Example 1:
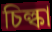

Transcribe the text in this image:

চিল্কা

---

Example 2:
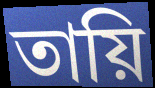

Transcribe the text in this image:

তায়ি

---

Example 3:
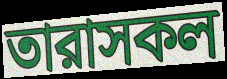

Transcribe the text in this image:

তারাসকল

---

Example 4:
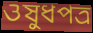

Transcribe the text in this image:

ওষুধপত্র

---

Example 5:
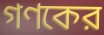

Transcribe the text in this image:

গণকের